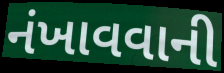
નંખાવવાની